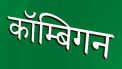
कॉम्बिगन